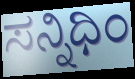
ಸನ್ನಿಧಿಂ